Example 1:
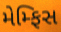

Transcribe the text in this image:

મેમ્ફિસ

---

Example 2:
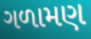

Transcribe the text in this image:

ગળામણ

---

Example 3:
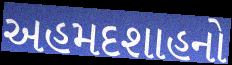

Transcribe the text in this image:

અહમદશાહનો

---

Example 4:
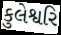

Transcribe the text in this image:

કુલેશ્વરિ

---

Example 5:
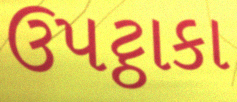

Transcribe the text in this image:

ઉપટ્ઠાકા